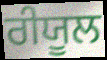
ਰੀਯੂਲ